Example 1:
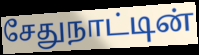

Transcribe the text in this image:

சேதுநாட்டின்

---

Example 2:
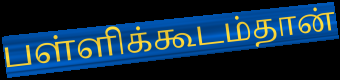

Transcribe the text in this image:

பள்ளிக்கூடம்தான்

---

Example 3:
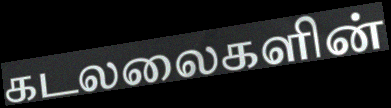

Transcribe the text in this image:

கடலலைகளின்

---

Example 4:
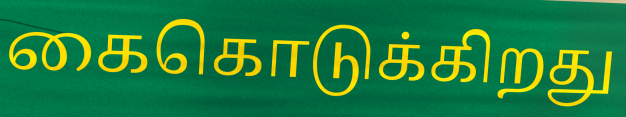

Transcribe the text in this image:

கைகொடுக்கிறது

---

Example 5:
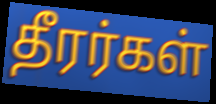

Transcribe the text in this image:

தீரர்கள்